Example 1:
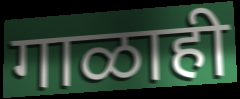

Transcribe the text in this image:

गाळाही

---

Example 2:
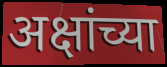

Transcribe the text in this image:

अक्षांच्या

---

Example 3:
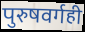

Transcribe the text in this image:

पुरुषवर्गही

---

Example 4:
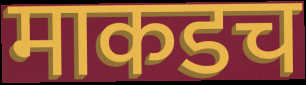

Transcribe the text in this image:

माकडच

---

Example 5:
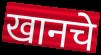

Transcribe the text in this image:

खानचे